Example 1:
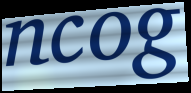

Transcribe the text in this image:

ncog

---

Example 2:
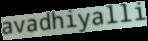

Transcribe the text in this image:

avadhiyalli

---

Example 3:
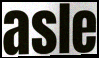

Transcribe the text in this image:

asle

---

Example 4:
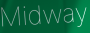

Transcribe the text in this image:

Midway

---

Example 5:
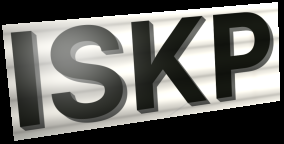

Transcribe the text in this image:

ISKP